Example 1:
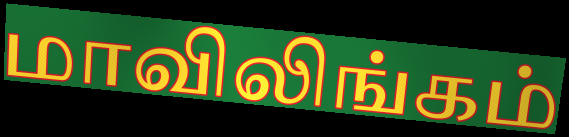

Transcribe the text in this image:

மாவிலிங்கம்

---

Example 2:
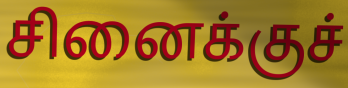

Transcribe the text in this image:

சினைக்குச்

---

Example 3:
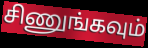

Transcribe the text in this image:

சிணுங்கவும்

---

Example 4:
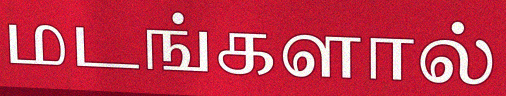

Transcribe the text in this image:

மடங்களால்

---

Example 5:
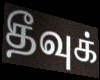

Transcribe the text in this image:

தீவுக்